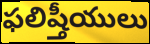
ఫలిష్తీయులు